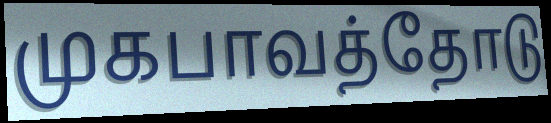
முகபாவத்தோடு